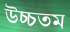
উচ্চতম